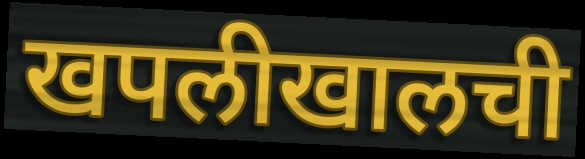
खपलीखालची